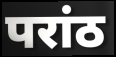
परांठ